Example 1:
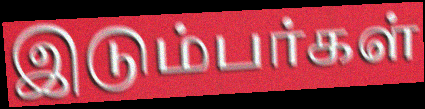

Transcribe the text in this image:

இடும்பர்கள்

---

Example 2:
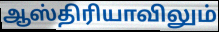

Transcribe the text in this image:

ஆஸ்திரியாவிலும்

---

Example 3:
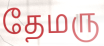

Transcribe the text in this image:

தேமரு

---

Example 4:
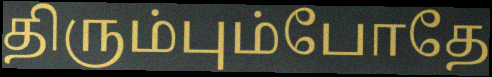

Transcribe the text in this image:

திரும்பும்போதே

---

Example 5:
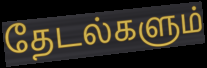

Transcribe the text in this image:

தேடல்களும்